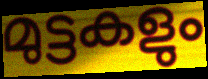
മുട്ടകളും